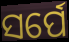
ସର୍ପେ